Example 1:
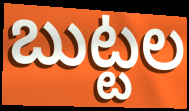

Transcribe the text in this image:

బుట్టల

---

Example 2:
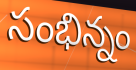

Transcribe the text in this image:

సంభిన్నం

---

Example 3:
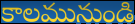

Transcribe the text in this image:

కాలమునుండి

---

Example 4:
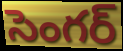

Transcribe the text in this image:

సెంగర్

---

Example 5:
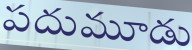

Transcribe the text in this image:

పదుమూడు